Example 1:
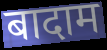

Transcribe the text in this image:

बादाम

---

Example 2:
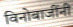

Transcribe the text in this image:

विनोबाजींनी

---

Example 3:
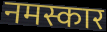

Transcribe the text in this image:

नमस्कार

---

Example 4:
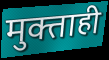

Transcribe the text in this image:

मुक्ताही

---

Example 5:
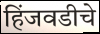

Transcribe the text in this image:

हिंजवडीचे